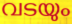
വടയും